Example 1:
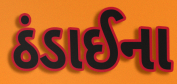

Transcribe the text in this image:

ઠંડાઈના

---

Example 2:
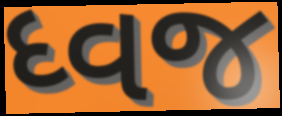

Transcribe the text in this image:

ધ્વજ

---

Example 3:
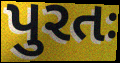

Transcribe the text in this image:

પુરતઃ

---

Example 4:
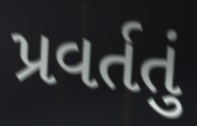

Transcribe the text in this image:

પ્રવર્તતું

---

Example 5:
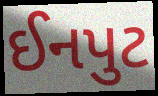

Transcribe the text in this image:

ઈનપુટ